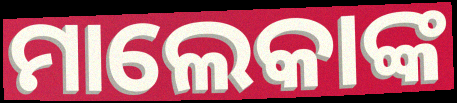
ମାଲେକାଙ୍କ